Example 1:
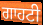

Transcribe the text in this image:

ਗਾਹਟੀ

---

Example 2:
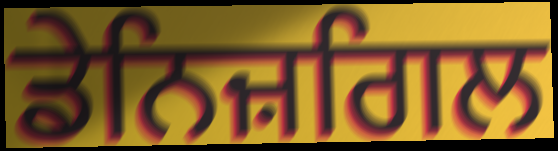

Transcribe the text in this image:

ਡੇਨਿਜ਼ਗਿਲ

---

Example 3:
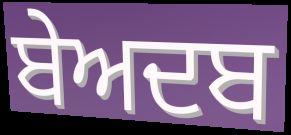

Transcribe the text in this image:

ਬੇਅਦਬ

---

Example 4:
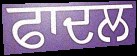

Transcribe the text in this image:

ਫਾਦਲ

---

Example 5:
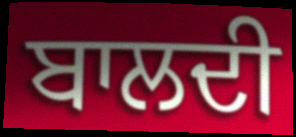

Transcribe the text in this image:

ਬਾਲਦੀ